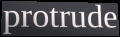
protrude